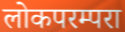
लोकपरम्परा